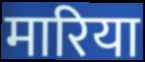
मारिया